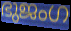
ഭുജംഗ